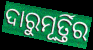
ଦାରୁମୂର୍ତ୍ତିର